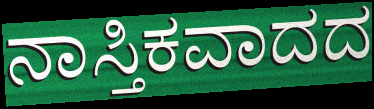
ನಾಸ್ತಿಕವಾದದ